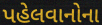
પહેલવાનોના